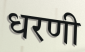
धरणी